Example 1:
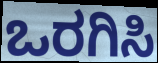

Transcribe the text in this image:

ಒರಗಿಸಿ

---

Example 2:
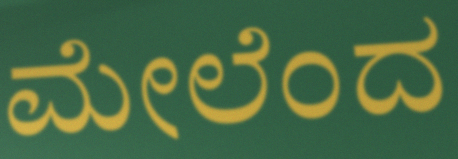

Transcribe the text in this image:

ಮೇಲೆಂದ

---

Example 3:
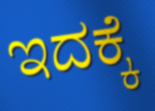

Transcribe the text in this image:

ಇದಕ್ಕೆ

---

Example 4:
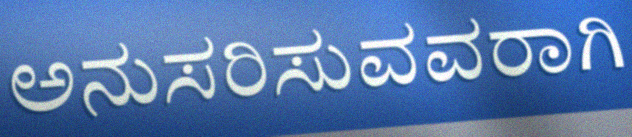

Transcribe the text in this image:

ಅನುಸರಿಸುವವರಾಗಿ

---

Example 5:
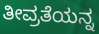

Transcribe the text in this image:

ತೀವ್ರತೆಯನ್ನ